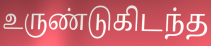
உருண்டுகிடந்த